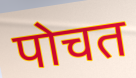
पोचत